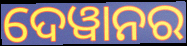
ଦେୱାନର